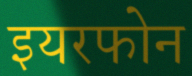
इयरफोन